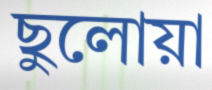
ছুলোয়া